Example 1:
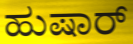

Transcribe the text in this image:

ಹುಷಾರ್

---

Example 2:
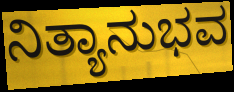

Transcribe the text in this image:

ನಿತ್ಯಾನುಭವ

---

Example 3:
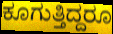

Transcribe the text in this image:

ಕೂಗುತ್ತಿದ್ದರೂ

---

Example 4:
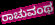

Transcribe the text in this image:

ರಾಚುವಂಥ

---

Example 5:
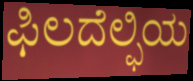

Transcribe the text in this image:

ಫಿಲದೆಲ್ಫಿಯ